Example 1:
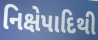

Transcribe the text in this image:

નિક્ષેપાદિથી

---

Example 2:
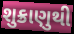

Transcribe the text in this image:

શુક્રાણુથી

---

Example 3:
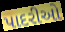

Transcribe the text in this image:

પાદરીઓ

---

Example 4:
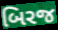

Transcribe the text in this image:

બિરજ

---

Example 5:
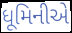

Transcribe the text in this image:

ધૂમિનીએ